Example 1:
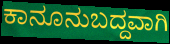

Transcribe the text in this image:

ಕಾನೂನುಬದ್ದವಾಗಿ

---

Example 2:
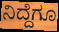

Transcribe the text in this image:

ನಿದ್ದೆಗೂ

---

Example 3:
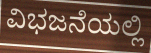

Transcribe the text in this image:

ವಿಭಜನೆಯಲ್ಲಿ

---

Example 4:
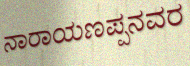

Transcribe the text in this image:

ನಾರಾಯಣಪ್ಪನವರ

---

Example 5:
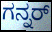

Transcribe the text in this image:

ಗನ್ನರ್